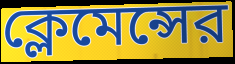
ক্লেমেন্সের